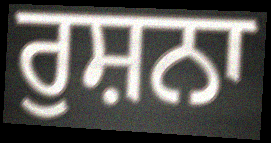
ਰੁਸ਼ਨਾ